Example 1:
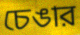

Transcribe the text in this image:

চেঙার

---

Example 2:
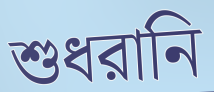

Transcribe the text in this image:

শুধরানি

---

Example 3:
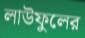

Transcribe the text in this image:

লাউফুলের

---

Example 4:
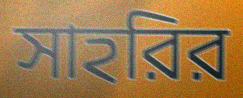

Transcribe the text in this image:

সাহরির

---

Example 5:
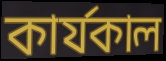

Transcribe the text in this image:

কার্যকাল